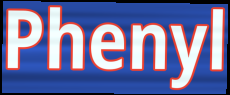
Phenyl